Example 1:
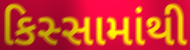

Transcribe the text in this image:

કિસ્સામાંથી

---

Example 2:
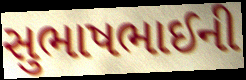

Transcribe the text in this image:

સુભાષભાઈની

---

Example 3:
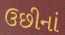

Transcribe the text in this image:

ઉછીનાં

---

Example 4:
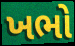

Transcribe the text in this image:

ખભો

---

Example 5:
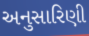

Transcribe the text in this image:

અનુસારિણી